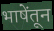
भाषेंतून